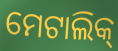
ମେଟାଲିକ୍